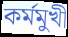
কর্মমুখী